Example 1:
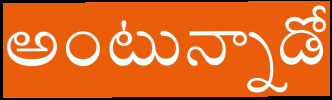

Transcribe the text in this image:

అంటున్నాడో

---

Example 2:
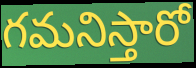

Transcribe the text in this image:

గమనిస్తారో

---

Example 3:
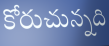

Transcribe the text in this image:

కోరుచున్నది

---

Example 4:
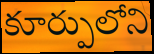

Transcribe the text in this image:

కూర్పులోని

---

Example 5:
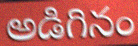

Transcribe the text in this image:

అడిగినం